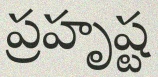
ప్రహృష్ట